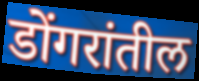
डोंगरांतील